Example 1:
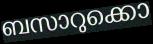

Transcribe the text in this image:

ബസാറുക്കൊ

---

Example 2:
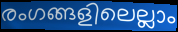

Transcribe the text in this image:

രംഗങ്ങളിലെല്ലാം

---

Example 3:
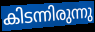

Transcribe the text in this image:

കിടന്നിരുന്നു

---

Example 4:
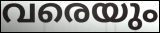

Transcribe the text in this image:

വരെയും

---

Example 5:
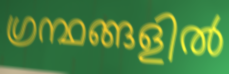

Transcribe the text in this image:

ഗ്രന്ഥങ്ങളിൽ